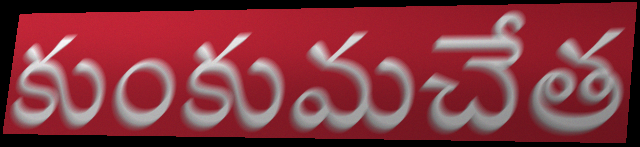
కుంకుమచేత